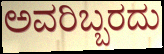
ಅವರಿಬ್ಬರದು